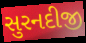
સુરનદીજી